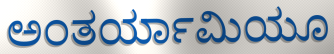
ಅಂತರ್ಯಾಮಿಯೂ